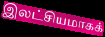
இலட்சியமாகக்